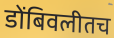
डोंबिवलीतच